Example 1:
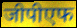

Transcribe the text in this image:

जीपीएफ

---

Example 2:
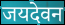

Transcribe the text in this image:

जयदेवन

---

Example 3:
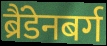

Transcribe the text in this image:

ब्रैंडेनबर्ग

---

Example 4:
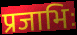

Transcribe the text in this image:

प्रजाभिः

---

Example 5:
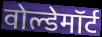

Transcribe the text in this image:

वोल्डेमॉर्ट